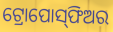
ଟ୍ରୋପୋସ୍‌ଫିଅର